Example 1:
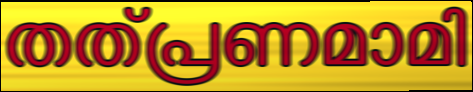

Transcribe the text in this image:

തത്പ്രണമാമി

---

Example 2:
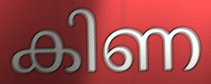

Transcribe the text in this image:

കിണ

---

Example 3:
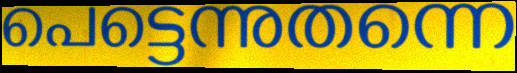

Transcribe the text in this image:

പെട്ടെന്നുതന്നെ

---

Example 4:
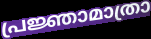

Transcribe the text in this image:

പ്രജ്ഞാമാത്രാ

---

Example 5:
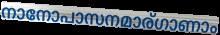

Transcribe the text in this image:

നാനോപാസനമാര്ഗാണാം